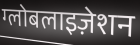
ग्लोबलाइज़ेशन